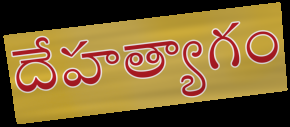
దేహత్యాగం